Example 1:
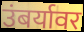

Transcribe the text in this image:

उंबर्यावर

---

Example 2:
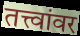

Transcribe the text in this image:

तत्त्वांवर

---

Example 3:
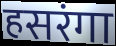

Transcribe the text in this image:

हसरंगा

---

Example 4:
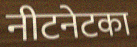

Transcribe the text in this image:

नीटनेटका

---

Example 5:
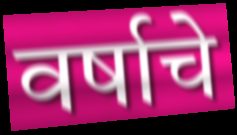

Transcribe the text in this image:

वर्षाचे